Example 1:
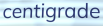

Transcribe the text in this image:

centigrade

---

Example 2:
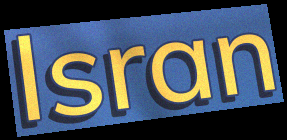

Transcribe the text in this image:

Isran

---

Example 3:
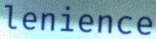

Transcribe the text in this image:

lenience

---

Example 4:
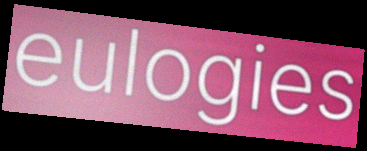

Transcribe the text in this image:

eulogies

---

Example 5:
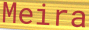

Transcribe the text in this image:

Meira